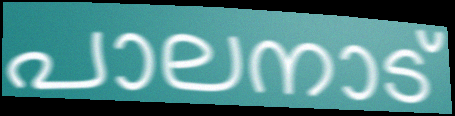
പാലനാട്